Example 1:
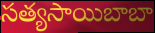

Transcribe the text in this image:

సత్యసాయిబాబా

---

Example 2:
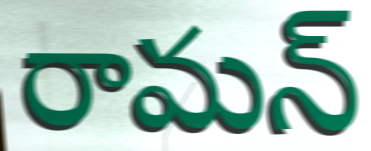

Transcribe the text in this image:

రామన్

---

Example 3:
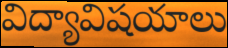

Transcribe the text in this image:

విద్యావిషయాలు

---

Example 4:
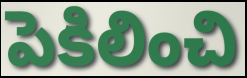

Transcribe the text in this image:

పెకిలించి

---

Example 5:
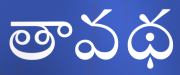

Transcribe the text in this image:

తావథ